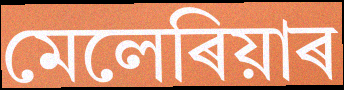
মেলেৰিয়াৰ